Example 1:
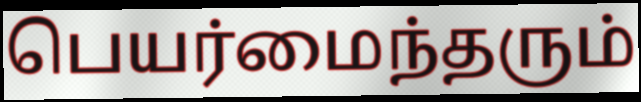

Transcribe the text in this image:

பெயர்மைந்தரும்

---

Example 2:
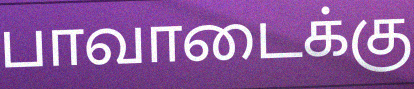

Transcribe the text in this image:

பாவாடைக்கு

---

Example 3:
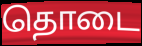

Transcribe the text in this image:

தொடை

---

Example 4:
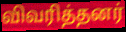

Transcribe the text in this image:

விவரித்தனர்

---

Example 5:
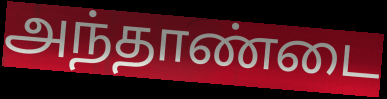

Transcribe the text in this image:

அந்தாண்டை